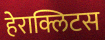
हेराक्लिटस